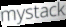
mystack